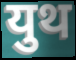
युथ